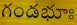
గండభూః